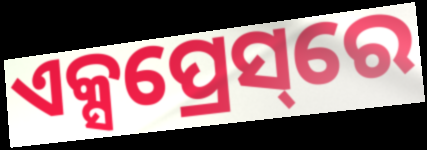
ଏକ୍ସପ୍ରେସ୍‌ରେ